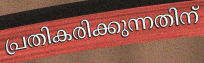
പ്രതികരിക്കുന്നതിന്